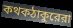
কথকঠাকুরেরা